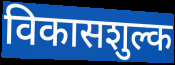
विकासशुल्क